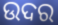
ଉଦର